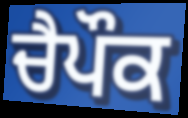
ਚੈਪੌਕ